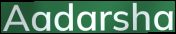
Aadarsha